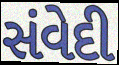
સંવેદી